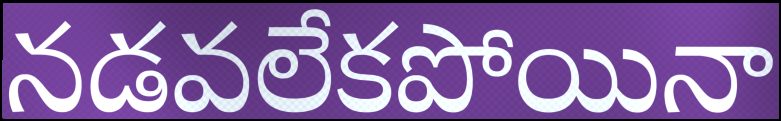
నడవలేకపోయినా